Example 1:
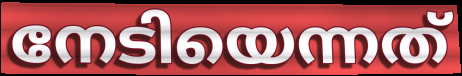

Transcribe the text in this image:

നേടിയെന്നത്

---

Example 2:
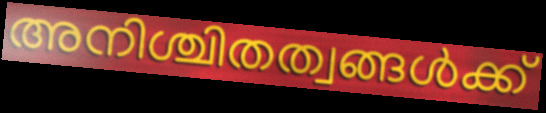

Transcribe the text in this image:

അനിശ്ചിതത്വങ്ങൾക്ക്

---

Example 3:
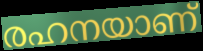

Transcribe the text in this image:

രഹനയാണ്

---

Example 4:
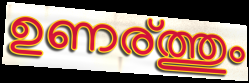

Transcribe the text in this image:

ഉണര്ത്തും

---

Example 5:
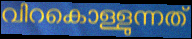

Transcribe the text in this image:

വിറകൊള്ളുന്നത്